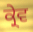
ਕ੍ਰੇਵ